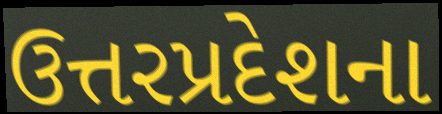
ઉત્તરપ્રદેશના